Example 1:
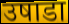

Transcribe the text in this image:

उषाडा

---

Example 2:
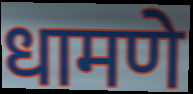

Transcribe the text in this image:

धामणे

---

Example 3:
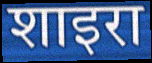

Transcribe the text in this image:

शाइरा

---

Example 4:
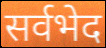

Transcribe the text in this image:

सर्वभेद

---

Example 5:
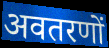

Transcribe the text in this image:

अवतरणों